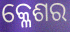
କ୍ଳେଶର